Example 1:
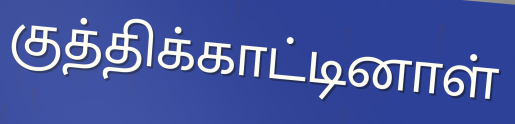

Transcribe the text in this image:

குத்திக்காட்டினாள்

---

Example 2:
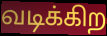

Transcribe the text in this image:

வடிக்கிற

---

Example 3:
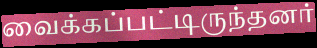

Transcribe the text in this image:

வைக்கப்பட்டிருந்தனர்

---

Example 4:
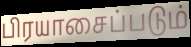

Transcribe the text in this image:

பிரயாசைப்படும்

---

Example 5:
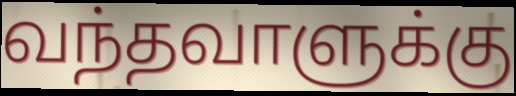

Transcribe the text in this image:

வந்தவாளுக்கு